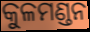
କୁଳମଣ୍ଡନ